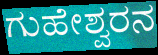
ಗುಹೇಶ್ವರನ